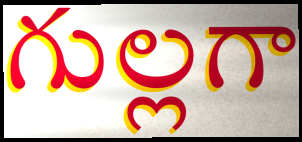
గుల్లగా